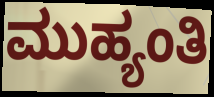
ಮುಹ್ಯಂತಿ